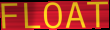
FLOAT